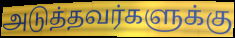
அடுத்தவர்களுக்கு